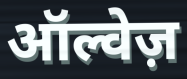
ऑल्वेज़